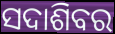
ସଦାଶିବର